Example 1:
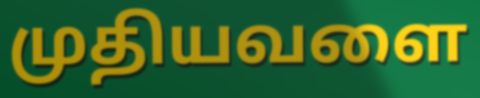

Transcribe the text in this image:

முதியவளை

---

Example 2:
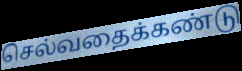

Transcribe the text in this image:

செல்வதைக்கண்டு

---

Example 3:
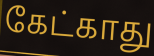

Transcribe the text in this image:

கேட்காது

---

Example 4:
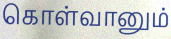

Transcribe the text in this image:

கொள்வானும்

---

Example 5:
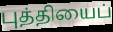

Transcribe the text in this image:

புத்தியைப்